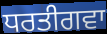
ਧਰਤੀਗਵਾ